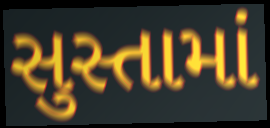
સુસ્તામાં